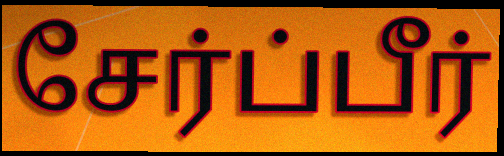
சேர்ப்பீர்